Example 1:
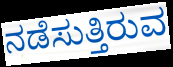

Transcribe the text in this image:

ನಡೆಸುತ್ತಿರುವ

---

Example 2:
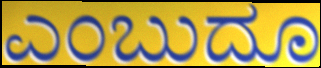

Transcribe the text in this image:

ಎಂಬುದೂ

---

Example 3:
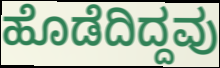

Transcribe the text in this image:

ಹೊಡೆದಿದ್ದವು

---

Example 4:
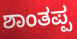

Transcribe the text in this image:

ಶಾಂತಪ್ಪ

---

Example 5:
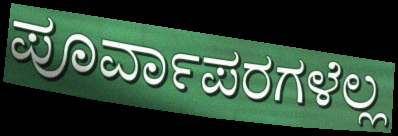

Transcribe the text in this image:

ಪೂರ್ವಾಪರಗಳೆಲ್ಲ